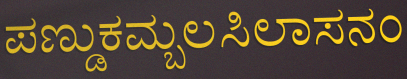
ಪಣ್ಡುಕಮ್ಬಲಸಿಲಾಸನಂ